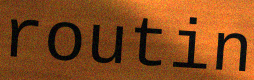
routin